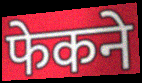
फेकने